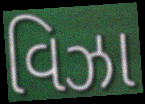
વિઝા